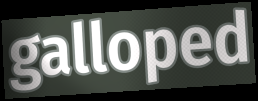
galloped